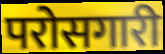
परोसगारी